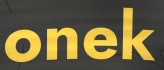
onek